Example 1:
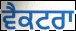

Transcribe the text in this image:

ਵੈਕਟਰਾ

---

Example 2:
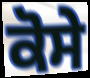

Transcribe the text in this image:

ਕੋਸੇ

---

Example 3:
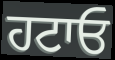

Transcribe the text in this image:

ਹਟਾਓ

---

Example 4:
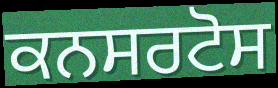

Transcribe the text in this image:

ਕਨਸਰਟੋਸ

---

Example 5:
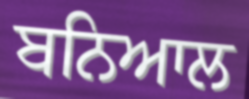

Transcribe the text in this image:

ਬਨਿਆਲ